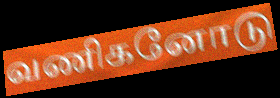
வணிகனோடு